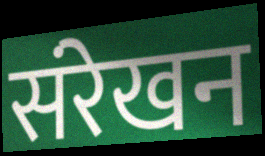
संरेखन